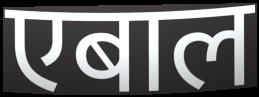
एबाल